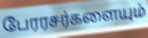
பேரரசர்களையும்